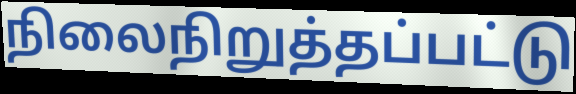
நிலைநிறுத்தப்பட்டு